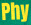
Phy